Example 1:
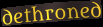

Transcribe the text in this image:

dethroned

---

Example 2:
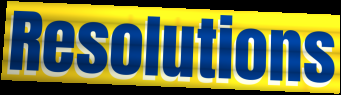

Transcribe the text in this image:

Resolutions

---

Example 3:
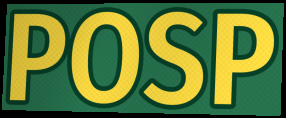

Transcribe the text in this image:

POSP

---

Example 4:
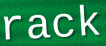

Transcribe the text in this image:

rack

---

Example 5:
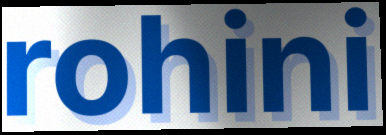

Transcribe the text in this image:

rohini